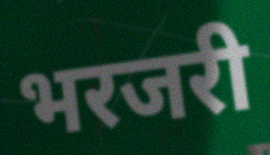
भरजरी